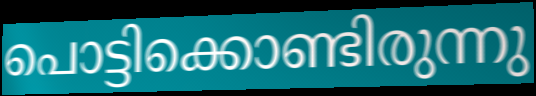
പൊട്ടിക്കൊണ്ടിരുന്നു